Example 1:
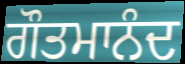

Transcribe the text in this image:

ਗੌਤਮਾਨੰਦ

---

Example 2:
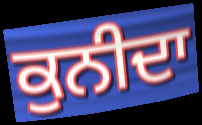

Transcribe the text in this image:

ਕੁਨੀਦਾ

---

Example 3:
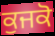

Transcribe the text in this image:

ਕੁਜਕੋ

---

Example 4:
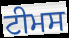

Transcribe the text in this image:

ਟੀਮਸ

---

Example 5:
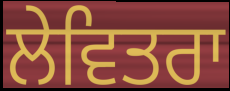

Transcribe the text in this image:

ਲੇਵਿਤਰਾ